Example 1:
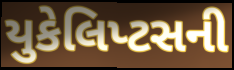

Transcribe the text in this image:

યુકેલિપ્ટસની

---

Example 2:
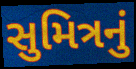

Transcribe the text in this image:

સુમિત્રનું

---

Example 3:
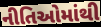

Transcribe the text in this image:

નીતિઓમાંથી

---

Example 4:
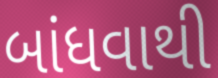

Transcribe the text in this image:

બાંધવાથી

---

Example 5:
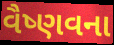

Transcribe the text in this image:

વૈષ્ણવના